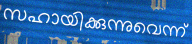
സഹായിക്കുന്നുവെന്ന്